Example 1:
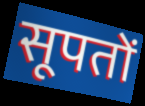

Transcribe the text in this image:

सूपतों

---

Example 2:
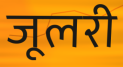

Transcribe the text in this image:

जूलरी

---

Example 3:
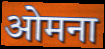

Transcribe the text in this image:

ओमना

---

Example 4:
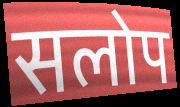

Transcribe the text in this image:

सलोप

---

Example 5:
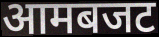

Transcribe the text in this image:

आमबजट